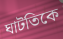
ঘাটতিকে